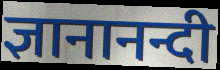
ज्ञानानन्दी